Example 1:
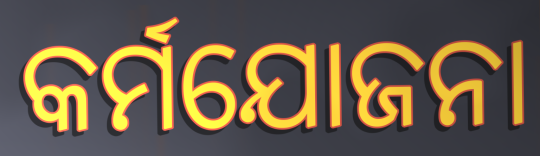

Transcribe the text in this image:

କର୍ମଯୋଜନା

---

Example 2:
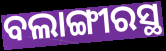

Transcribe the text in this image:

ବଲାଙ୍ଗୀରସ୍ଥ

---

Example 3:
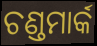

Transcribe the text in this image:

ଚଣ୍ଡମାର୍କ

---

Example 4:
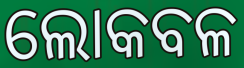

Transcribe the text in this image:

ଲୋକବଳ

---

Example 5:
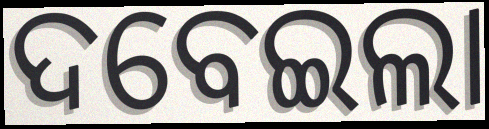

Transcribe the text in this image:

ଦବେଇଲା